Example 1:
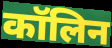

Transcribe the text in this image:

कॉलिन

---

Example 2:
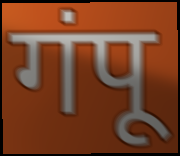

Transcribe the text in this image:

गंपू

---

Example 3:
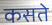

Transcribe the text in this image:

कसते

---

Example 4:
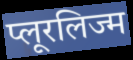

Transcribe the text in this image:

प्लूरलिज्म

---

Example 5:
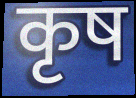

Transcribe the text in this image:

कृष